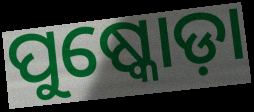
ପୁଷ୍କୋଡ଼ା